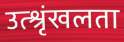
उत्श्रृंखलता